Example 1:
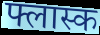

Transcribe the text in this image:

फ्लास्क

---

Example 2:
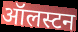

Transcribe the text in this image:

ऑलस्टन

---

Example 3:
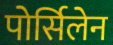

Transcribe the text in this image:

पोर्सिलेन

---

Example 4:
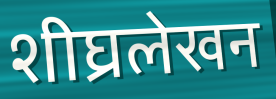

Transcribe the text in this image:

शीघ्रलेखन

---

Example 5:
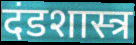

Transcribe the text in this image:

दंडशास्त्र